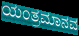
ಯಂತ್ರಮಾನವ